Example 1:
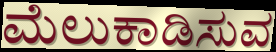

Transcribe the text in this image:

ಮೆಲುಕಾಡಿಸುವ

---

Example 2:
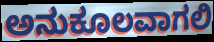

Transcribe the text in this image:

ಅನುಕೂಲವಾಗಲಿ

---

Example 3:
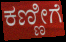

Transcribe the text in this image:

ಕಣ್ಣೀಗೆ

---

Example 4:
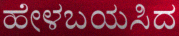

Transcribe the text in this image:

ಹೇಳಬಯಸಿದ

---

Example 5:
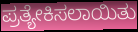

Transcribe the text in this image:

ಪ್ರತ್ಯೇಕಿಸಲಾಯಿತು